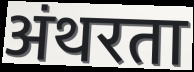
अंथरता